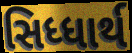
સિધ્ધાર્થ